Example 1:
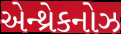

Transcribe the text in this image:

એન્થ્રેકનોઝ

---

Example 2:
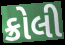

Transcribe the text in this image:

ક્રોલી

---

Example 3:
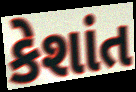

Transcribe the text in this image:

કેશાંત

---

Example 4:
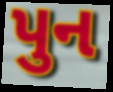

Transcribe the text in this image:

પુન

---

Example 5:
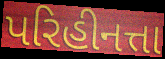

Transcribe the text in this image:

પરિહીનત્તા